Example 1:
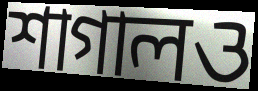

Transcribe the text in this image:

শাগালও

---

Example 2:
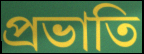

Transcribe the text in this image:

প্রভাতি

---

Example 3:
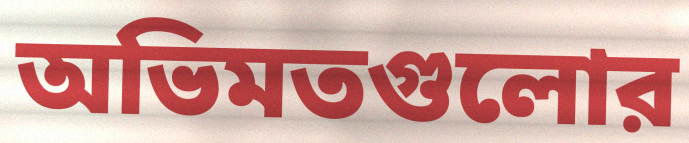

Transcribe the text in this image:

অভিমতগুলোর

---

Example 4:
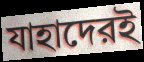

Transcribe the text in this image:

যাহাদেরই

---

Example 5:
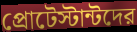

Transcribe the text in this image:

প্রোটেস্টান্টদের